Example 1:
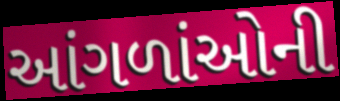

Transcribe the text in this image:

આંગળાંઓની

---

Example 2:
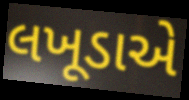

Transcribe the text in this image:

લખૂડાએ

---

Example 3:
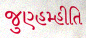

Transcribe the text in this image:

જુણ્હમ્હીતિ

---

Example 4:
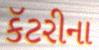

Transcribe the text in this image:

કૅટરીના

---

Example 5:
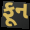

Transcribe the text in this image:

ફૂન